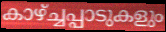
കാഴ്ച്ചപ്പാടുകളും